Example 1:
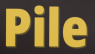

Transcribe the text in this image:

Pile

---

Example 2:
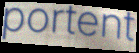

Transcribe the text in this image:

portent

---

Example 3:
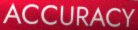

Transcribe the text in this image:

ACCURACY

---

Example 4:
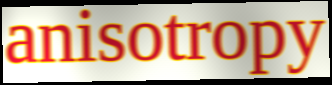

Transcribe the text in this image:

anisotropy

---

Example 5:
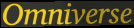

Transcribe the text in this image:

Omniverse